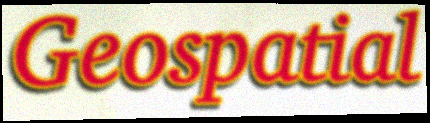
Geospatial